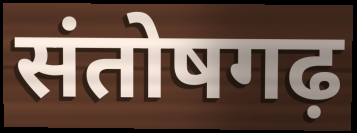
संतोषगढ़